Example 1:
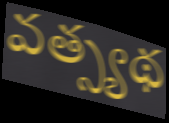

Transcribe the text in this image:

వత్స్యథ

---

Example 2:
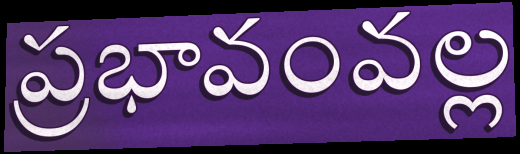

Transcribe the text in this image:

ప్రభావంవల్ల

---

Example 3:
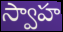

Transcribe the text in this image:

స్వాహ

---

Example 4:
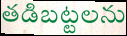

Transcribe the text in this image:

తడిబట్టలను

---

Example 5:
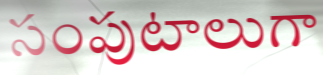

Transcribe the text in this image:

సంపుటాలుగా